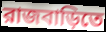
রাজবাড়িতে